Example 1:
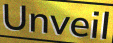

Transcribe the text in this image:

Unveil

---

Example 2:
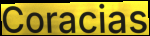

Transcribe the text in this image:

Coracias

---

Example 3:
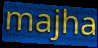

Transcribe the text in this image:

majha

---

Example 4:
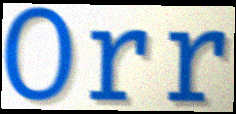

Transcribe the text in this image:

Orr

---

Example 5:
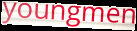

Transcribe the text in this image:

youngmen